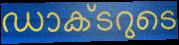
ഡാക്ടറുടെ